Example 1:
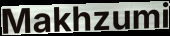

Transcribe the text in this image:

Makhzumi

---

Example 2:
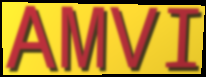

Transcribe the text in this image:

AMVI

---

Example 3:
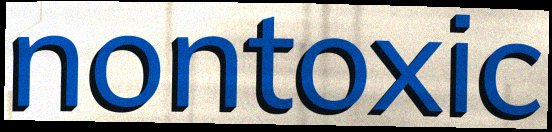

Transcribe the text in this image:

nontoxic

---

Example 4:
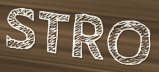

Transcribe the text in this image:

STRO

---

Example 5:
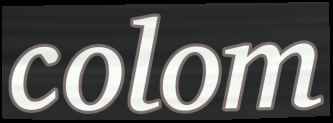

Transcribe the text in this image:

colom